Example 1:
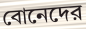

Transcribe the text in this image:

বোনেদের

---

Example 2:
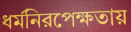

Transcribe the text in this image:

ধর্মনিরপেক্ষতায়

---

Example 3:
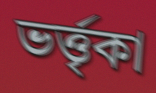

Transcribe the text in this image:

ভর্ত্তৃকা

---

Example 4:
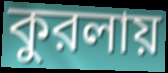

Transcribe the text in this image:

কুরলায়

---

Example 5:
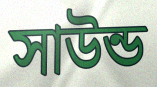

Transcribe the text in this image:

সাউন্ড